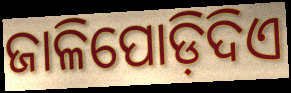
ଜାଳିପୋଡ଼ିଦିଏ